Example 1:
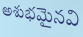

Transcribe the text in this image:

అశుభమైనవి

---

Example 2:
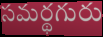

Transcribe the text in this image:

సమర్థగురు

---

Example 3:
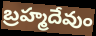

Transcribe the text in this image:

బ్రహ్మదేవుం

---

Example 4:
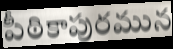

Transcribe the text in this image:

పీఠికాపురమున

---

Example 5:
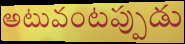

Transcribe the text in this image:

అటువంటప్పుడు